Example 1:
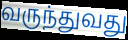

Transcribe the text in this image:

வருந்துவது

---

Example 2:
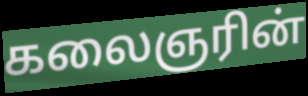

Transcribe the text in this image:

கலைஞரின்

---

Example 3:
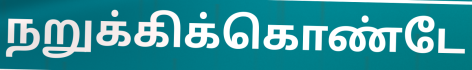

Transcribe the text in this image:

நறுக்கிக்கொண்டே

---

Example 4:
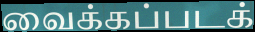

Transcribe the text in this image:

வைக்கப்படக்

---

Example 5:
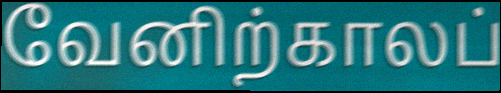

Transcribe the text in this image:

வேனிற்காலப்